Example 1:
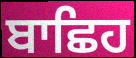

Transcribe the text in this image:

ਬਾਛਿਹ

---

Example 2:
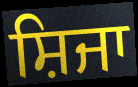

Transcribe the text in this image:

ਸ਼ਿਜਾ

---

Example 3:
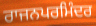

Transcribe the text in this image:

ਰਾਜਨਪਰਮਿੰਦਰ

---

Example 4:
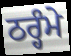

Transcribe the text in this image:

ਠਰ੍ਹੰਮੇ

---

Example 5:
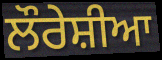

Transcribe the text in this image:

ਲੌਰੇਸ਼ੀਆ